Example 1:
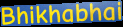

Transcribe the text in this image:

Bhikhabhai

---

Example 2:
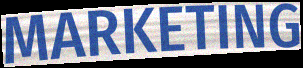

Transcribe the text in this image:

MARKETING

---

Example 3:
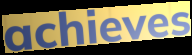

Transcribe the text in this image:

achieves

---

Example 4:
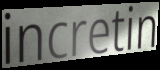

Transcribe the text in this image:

incretin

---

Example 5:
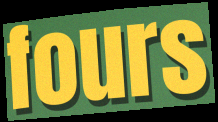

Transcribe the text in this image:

fours